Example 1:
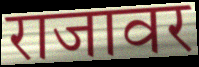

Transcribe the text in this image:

राजावर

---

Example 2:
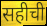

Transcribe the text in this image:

सहीची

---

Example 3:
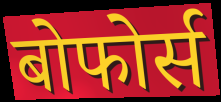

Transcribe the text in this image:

बोफोर्स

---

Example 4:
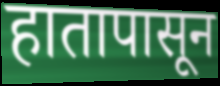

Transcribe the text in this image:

हातापासून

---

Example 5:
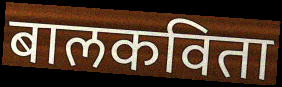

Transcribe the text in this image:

बालकविता